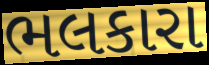
ભલકારા